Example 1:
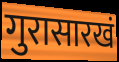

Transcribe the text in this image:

गुरासारखं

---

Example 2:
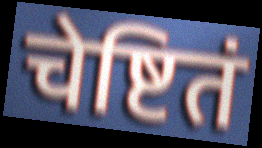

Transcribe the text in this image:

चेष्टितं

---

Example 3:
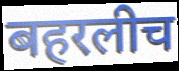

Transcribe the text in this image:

बहरलीच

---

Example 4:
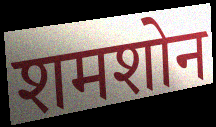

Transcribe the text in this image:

शमशोन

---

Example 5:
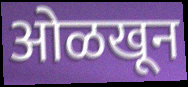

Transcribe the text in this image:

ओळखून